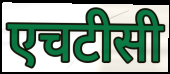
एचटीसी